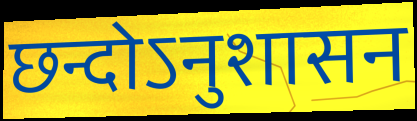
छन्दोऽनुशासन